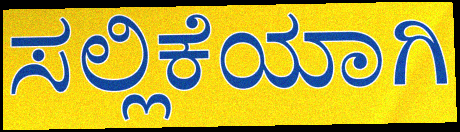
ಸಲ್ಲಿಕೆಯಾಗಿ